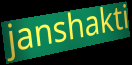
janshakti